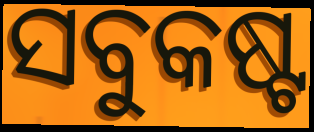
ସବୁକଷ୍ଟ